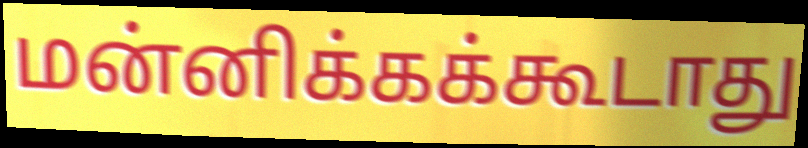
மன்னிக்கக்கூடாது